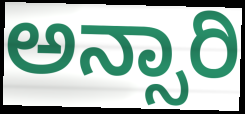
ಅನ್ಸಾರಿ